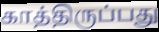
காத்திருப்பது